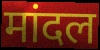
मांदल